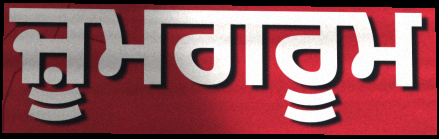
ਜ਼ੂਮਗਰੂਮ